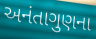
અનંતાગુણના